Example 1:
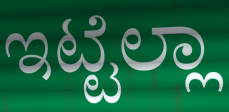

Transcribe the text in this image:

ಇಟ್ಟೆಲ್ಲಾ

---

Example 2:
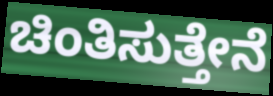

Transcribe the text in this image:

ಚಿಂತಿಸುತ್ತೇನೆ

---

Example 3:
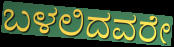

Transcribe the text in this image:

ಬಳಲಿದವರೇ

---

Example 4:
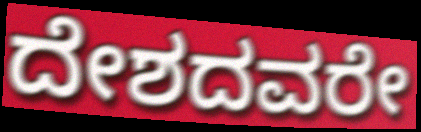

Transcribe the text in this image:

ದೇಶದವರೇ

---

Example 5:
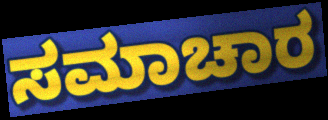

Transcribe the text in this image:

ಸಮಾಚಾರ